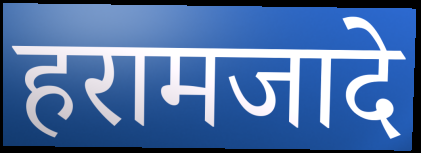
हरामजादे